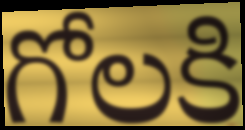
గోలకి